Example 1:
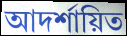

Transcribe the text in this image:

আদর্শায়িত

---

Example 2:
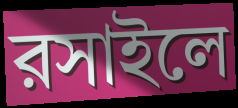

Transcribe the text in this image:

রসাইলে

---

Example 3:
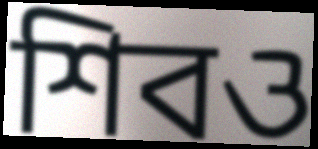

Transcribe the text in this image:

শিবও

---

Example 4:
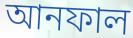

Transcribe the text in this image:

আনফাল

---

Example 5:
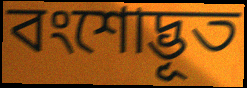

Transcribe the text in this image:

বংশোদ্ভূত